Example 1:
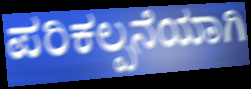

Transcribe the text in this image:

ಪರಿಕಲ್ಪನೆಯಾಗಿ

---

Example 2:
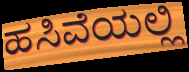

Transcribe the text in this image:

ಹಸಿವೆಯಲ್ಲಿ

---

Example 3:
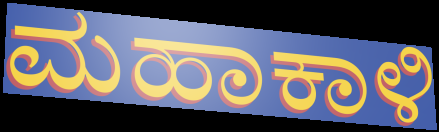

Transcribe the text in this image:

ಮಹಾಕಾಳಿ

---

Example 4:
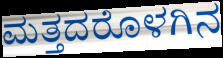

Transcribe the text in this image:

ಮತ್ತದರೊಳಗಿನ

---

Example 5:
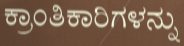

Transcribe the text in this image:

ಕ್ರಾಂತಿಕಾರಿಗಳನ್ನು